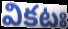
వికటః